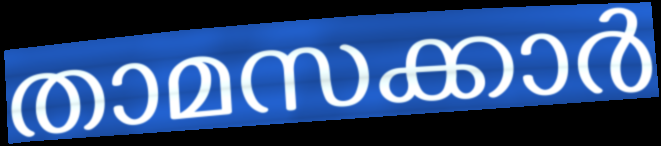
താമസക്കാർ